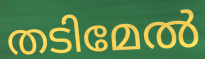
തടിമേൽ